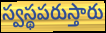
స్వస్థపరుస్తారు